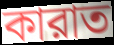
কারাত